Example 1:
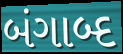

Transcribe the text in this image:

બંગાબ્દ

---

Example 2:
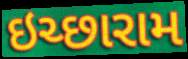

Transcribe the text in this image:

ઇચ્છારામ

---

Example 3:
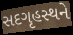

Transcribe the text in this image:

સદગૃહસ્થને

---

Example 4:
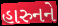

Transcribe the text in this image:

હારુનને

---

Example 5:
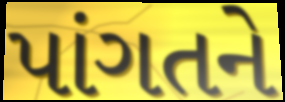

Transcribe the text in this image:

પાંગતને